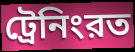
ট্রেনিংরত